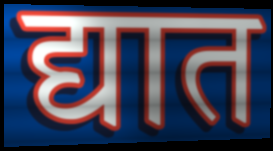
द्यात